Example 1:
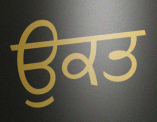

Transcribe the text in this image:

ਉੁਕਤ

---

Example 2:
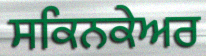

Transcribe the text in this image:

ਸਕਿਨਕੇਅਰ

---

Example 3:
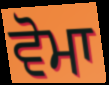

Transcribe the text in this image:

ਵੋਮਾ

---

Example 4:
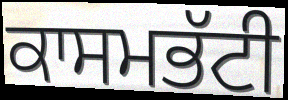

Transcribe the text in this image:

ਕਾਸਮਭੱਟੀ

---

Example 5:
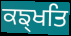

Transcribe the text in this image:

ਕਙ੍ਖਤਿ